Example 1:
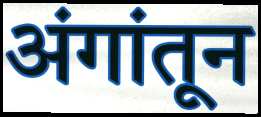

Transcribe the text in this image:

अंगांतून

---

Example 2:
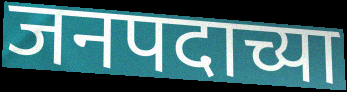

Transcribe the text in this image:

जनपदाच्या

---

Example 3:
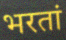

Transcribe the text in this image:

भरतां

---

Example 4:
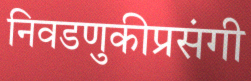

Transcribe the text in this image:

निवडणुकीप्रसंगी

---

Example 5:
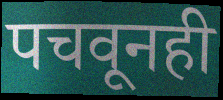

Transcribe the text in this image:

पचवूनही